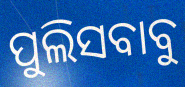
ପୁଲିସବାବୁ